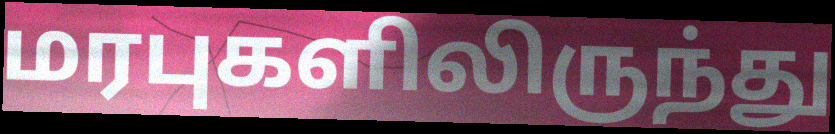
மரபுகளிலிருந்து